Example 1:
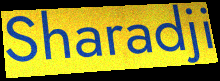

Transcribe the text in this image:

Sharadji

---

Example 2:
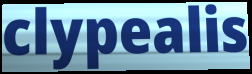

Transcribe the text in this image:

clypealis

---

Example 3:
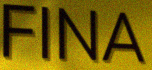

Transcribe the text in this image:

FINA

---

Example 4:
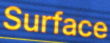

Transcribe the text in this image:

Surface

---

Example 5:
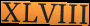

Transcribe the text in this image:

XLVIII